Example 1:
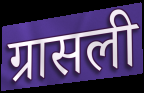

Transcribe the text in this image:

ग्रासली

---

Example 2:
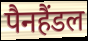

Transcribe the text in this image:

पैनहैंडल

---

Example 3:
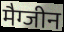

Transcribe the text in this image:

मैग्जीन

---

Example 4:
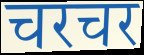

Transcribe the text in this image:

चरचर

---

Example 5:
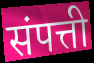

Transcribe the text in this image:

संपत्ती